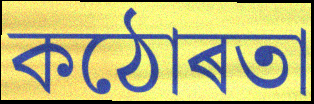
কঠোৰতা